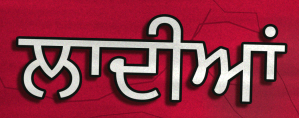
ਲਾਦੀਆਂ